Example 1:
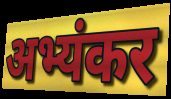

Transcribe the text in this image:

अभ्यंकर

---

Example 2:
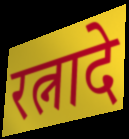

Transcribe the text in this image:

रत्नादे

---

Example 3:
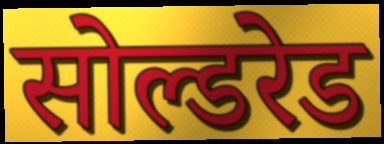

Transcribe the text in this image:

सोल्डरेड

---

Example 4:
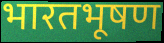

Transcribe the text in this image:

भारतभूषण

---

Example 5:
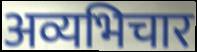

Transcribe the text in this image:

अव्यभिचार